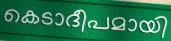
കെടാദീപമായി